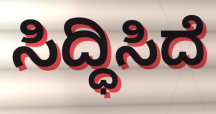
ಸಿದ್ಧಿಸಿದೆ